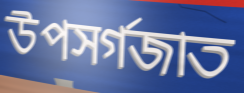
উপসর্গজাত